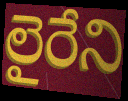
లైరేని